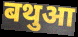
बथुआ